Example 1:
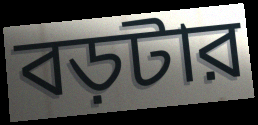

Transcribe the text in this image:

বড়টার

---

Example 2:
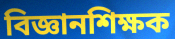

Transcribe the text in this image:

বিজ্ঞানশিক্ষক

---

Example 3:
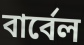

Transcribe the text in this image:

বার্বেল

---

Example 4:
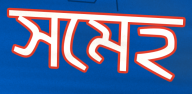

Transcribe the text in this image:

সমেহ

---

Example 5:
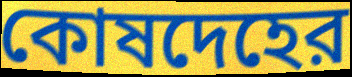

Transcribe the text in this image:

কোষদেহের